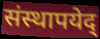
संस्थापयेद्